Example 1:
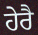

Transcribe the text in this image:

ਹੇਰੈ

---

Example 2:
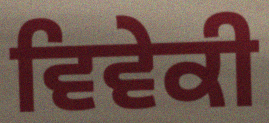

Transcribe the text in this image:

ਵਿਵੇਕੀ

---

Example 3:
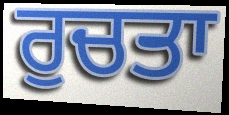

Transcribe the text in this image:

ਰੁਚਤਾ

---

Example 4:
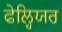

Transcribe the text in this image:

ਫੇਲ੍ਹਿਯਰ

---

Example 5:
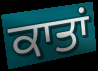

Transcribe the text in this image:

ਕਾਤਾਂ